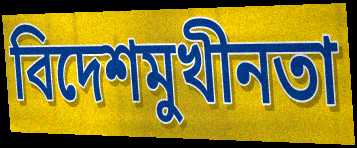
বিদেশমুখীনতা